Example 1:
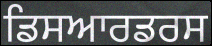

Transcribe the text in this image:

ਡਿਸਆਰਡਰਸ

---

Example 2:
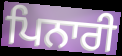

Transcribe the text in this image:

ਪਿਨਾਰੀ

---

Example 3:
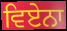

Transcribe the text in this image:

ਵਿਏਨਾ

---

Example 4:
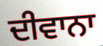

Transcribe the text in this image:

ਦੀਵਾਨਾ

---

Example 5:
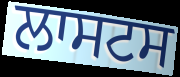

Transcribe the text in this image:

ਲਾਸਟਸ